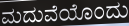
ಮದುವೆಯೊಂದು